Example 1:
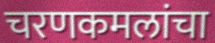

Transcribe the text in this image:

चरणकमलांचा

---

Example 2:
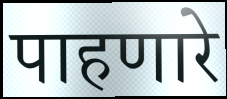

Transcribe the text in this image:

पाहणारे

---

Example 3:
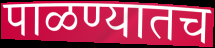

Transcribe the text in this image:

पाळण्यातच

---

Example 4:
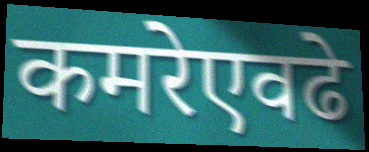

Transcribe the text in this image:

कमरेएवढे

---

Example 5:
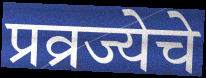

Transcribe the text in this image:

प्रव्रज्येचे